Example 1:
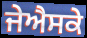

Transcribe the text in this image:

ਜੇਐਸਕੇ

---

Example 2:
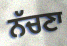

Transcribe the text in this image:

ਨੱਚਣਾ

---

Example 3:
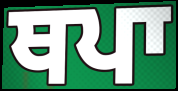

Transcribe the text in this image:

ਥਪਾ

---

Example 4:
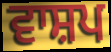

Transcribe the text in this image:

ਵਾਸ਼ਪ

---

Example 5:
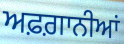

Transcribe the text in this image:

ਅਫ਼ਗ਼ਾਨੀਆਂ